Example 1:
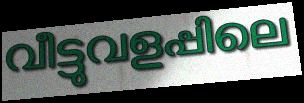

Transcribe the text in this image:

വീട്ടുവളപ്പിലെ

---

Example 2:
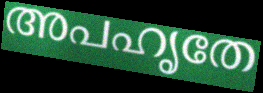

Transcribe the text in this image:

അപഹൃതേ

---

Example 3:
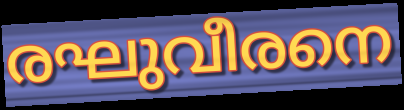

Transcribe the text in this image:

രഘുവീരനെ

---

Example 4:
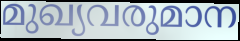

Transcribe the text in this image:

മുഖ്യവരുമാന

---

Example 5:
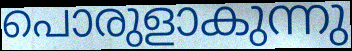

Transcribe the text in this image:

പൊരുളാകുന്നു